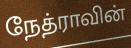
நேத்ராவின்